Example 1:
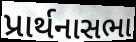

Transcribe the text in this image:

પ્રાર્થનાસભા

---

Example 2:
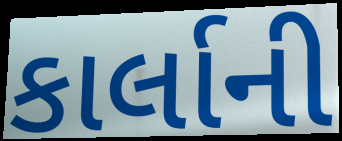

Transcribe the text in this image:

કાર્લાની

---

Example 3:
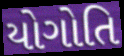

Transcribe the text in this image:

યોગોતિ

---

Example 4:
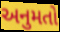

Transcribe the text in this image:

અનુમતો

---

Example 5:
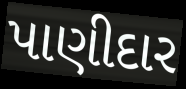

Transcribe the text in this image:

પાણીદાર